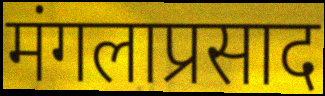
मंगलाप्रसाद